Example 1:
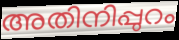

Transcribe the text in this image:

അതിനിപ്പുറം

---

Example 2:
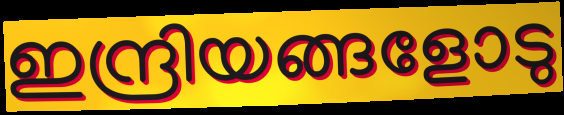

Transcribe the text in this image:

ഇന്ദ്രിയങ്ങളോടു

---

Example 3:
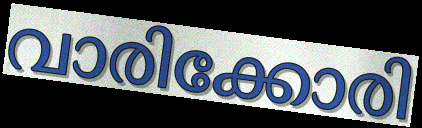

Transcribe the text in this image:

വാരിക്കോരി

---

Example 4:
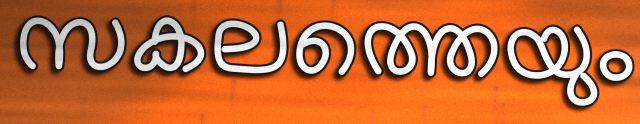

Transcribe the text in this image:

സകലത്തെയും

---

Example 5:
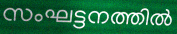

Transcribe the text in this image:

സംഘട്ടനത്തിൽ